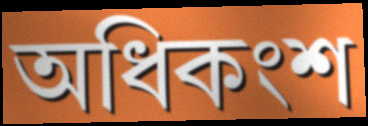
অধিকংশ